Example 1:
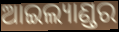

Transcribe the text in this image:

ଆଇଲ୍ୟାଣ୍ଡର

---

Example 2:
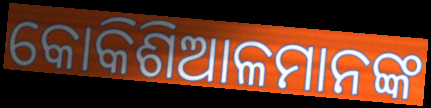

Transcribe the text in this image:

କୋକିଶିଆଳମାନଙ୍କ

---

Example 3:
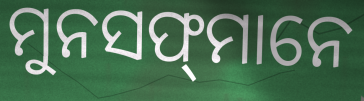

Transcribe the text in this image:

ମୁନସଫ୍‍ମାନେ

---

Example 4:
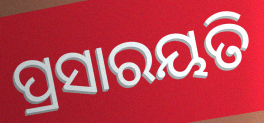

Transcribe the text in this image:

ପ୍ରସାରୟତି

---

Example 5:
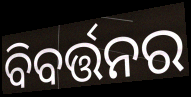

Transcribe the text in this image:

ବିବର୍ତ୍ତନର